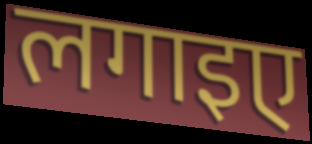
लगाइए